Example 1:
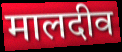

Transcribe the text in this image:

मालदीव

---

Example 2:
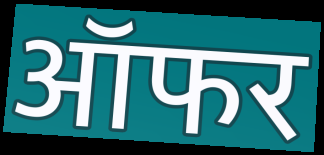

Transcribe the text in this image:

ऑफर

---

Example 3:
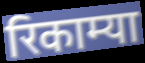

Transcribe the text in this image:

रिकाम्या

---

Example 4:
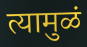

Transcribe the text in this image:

त्यामुळं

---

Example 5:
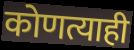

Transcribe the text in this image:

कोणत्याही